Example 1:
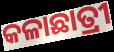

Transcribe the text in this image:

କଳାଛାତ୍ରୀ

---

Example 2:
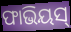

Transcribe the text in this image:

ଫାଭିୟସ୍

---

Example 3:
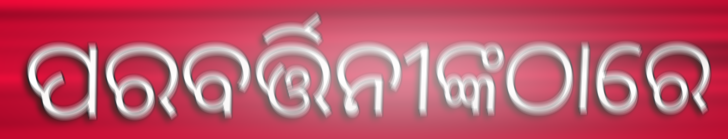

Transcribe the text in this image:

ପରବର୍ତ୍ତିନୀଙ୍କଠାରେ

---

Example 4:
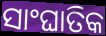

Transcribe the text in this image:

ସାଂଘାତିକ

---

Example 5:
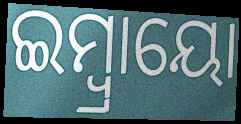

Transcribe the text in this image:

ଇମ୍ବ୍ରାୟୋ